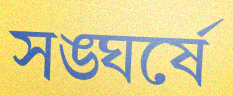
সঙ্ঘর্ষে